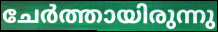
ചേർത്തായിരുന്നു